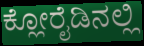
ಕ್ಲೋರೈಡಿನಲ್ಲಿ